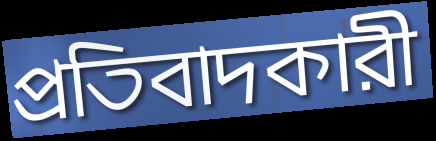
প্রতিবাদকারী